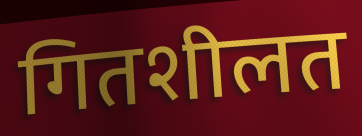
गितशीलत